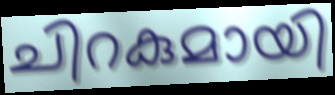
ചിറകുമായി